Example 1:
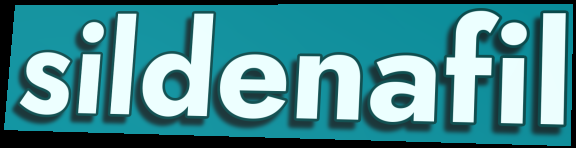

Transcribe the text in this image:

sildenafil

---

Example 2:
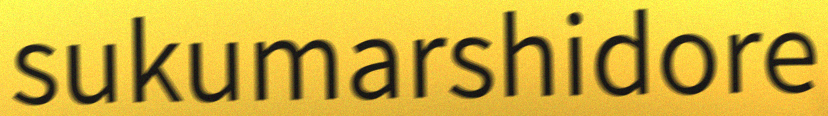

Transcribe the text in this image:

sukumarshidore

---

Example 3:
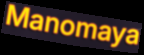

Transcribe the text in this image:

Manomaya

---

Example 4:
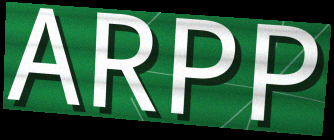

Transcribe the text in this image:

ARPP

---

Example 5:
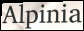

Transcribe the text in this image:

Alpinia